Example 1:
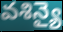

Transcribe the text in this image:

వశిన్యై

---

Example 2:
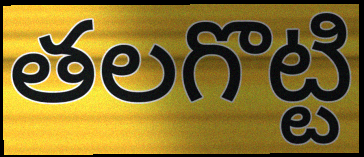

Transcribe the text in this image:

తలగొట్టి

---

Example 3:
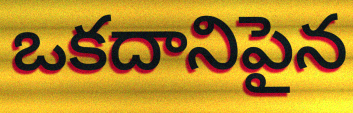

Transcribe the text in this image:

ఒకదానిపైన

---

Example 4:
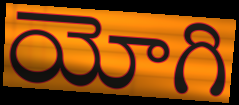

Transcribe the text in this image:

యోగి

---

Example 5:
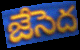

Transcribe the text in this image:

జేసెద